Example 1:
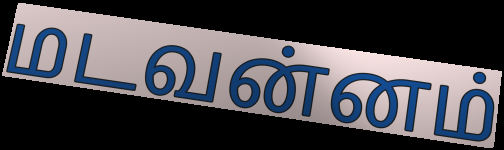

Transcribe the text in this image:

மடவன்னம்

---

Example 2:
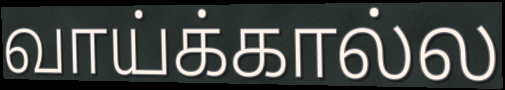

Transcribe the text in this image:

வாய்க்கால்ல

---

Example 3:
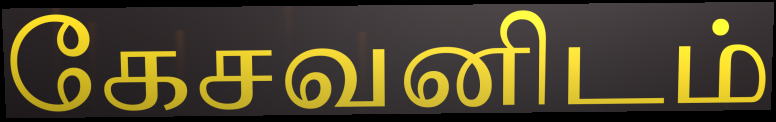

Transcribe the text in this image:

கேசவனிடம்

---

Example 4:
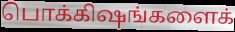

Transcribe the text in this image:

பொக்கிஷங்களைக்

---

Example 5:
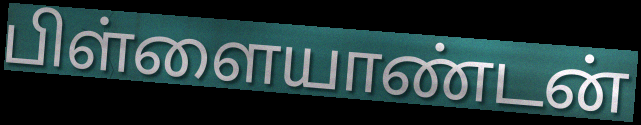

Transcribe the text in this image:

பிள்ளையாண்டன்